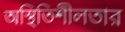
অস্থিতিশীলতার